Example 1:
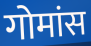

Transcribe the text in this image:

गोमांस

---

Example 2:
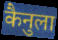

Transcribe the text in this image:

कैनुला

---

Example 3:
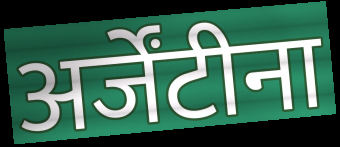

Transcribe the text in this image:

अर्जेंटीना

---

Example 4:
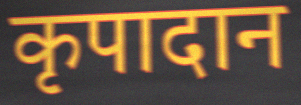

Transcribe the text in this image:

कृपादान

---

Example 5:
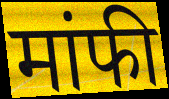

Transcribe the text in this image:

मांफी